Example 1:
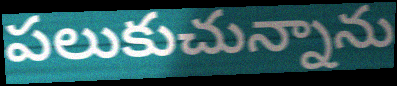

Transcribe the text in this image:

పలుకుచున్నాను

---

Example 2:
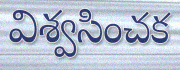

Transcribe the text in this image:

విశ్వసించక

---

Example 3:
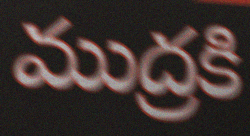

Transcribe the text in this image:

ముద్రకి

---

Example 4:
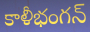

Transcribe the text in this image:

కాళీభంగన్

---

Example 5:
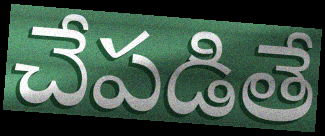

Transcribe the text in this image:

చేపడితే